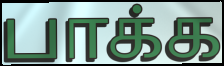
பாக்க